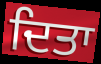
ਦਿਤਾ